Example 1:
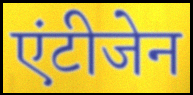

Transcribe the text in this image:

एंटीजेन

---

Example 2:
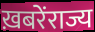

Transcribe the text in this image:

ख़बरेंराज्य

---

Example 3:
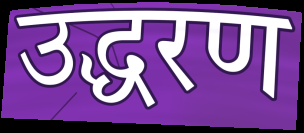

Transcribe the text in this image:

उद्धरण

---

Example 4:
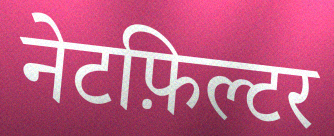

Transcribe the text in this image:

नेटफ़िल्टर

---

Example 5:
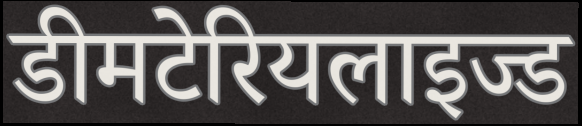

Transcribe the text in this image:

डीमटेरियलाइज्ड